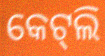
କେଟ୍‍ଲି